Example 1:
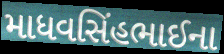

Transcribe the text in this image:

માધવસિંહભાઈના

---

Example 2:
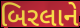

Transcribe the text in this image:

બિરલાને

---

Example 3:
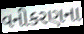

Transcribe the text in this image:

વનીકરણના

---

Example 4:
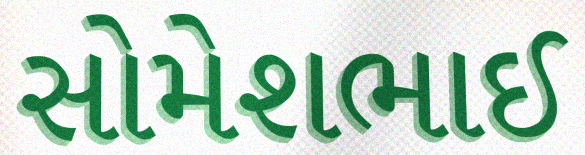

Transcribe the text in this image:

સોમેશભાઈ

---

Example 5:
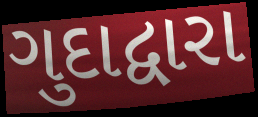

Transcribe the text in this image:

ગુદાદ્વારા